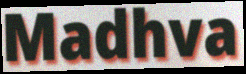
Madhva